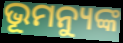
ଭୂମନ୍ୟୁଙ୍କ